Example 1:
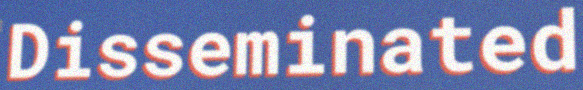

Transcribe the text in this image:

Disseminated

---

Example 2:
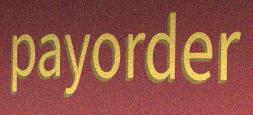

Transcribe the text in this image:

payorder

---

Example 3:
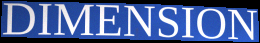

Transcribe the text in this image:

DIMENSION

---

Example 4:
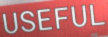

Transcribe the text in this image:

USEFUL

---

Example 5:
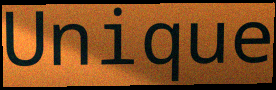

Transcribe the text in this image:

Unique